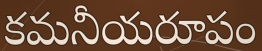
కమనీయరూపం